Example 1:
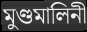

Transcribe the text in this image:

মুণ্ডমালিনী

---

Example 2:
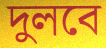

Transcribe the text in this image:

দুলবে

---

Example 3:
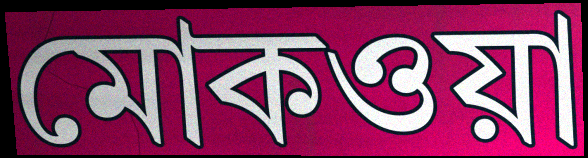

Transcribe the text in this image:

মোকওয়া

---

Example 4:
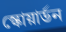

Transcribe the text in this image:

স্কোয়ার্ডন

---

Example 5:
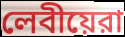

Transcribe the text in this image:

লেবীয়েরা